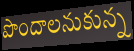
పొందాలనుకున్న